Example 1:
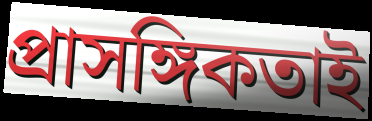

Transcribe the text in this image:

প্রাসঙ্গিকতাই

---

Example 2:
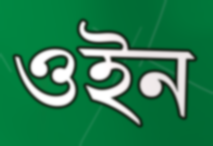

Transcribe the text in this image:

ওইন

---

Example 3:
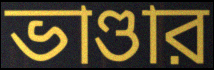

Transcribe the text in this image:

ভাণ্ডার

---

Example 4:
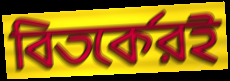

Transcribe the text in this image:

বিতর্কেরই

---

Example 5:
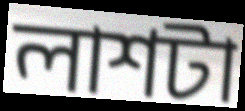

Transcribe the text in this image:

লাশটা